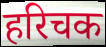
हरिचक